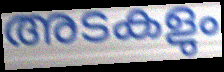
അടകളും